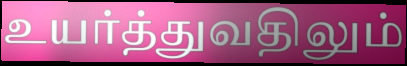
உயர்த்துவதிலும்